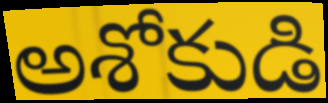
అశోకుడి